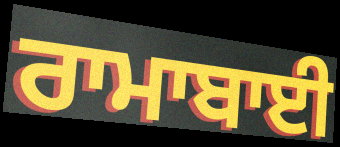
ਰਾਮਾਬਾਈ